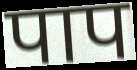
पाप